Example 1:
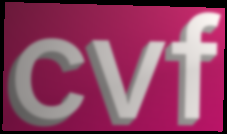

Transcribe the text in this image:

cvf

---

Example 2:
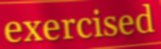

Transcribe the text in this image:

exercised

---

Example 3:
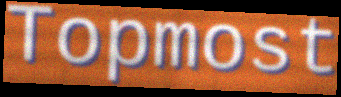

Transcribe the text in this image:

Topmost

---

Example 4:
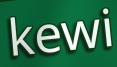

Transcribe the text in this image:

kewi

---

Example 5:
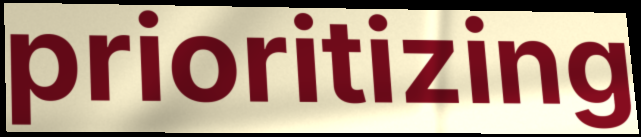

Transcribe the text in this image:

prioritizing